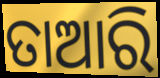
ତାଆରି